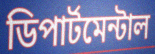
ডিপার্টমেন্টাল